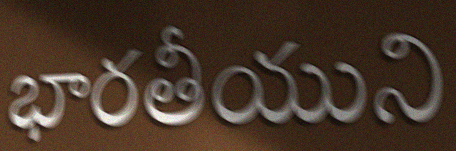
భారతీయుని